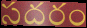
సదరం